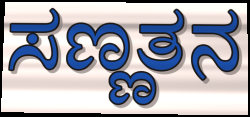
ಸಣ್ಣತನ